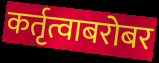
कर्तृत्वाबरोबर